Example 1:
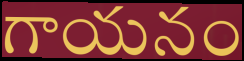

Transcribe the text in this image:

గాయనం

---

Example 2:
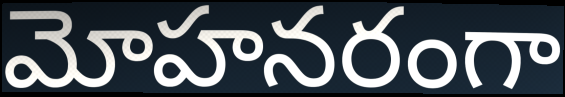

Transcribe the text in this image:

మోహనరంగా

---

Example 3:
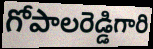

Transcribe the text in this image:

గోపాలరెడ్డిగారి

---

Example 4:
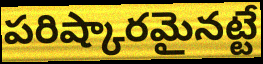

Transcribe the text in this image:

పరిష్కారమైనట్టే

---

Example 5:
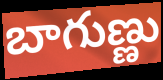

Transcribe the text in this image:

బాగుణ్ణు